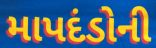
માપદંડોની